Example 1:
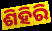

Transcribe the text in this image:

ଶିହିରି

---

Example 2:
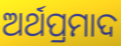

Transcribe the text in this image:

ଅର୍ଥପ୍ରମାଦ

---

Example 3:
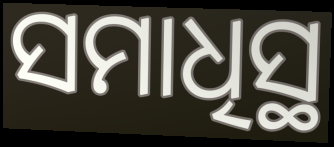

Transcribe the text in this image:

ସମାଧିସ୍ଥ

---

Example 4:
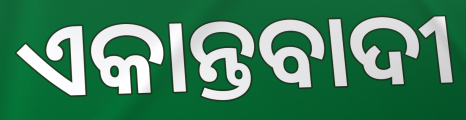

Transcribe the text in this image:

ଏକାନ୍ତବାଦୀ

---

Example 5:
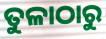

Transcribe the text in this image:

ତୁଳାଠାରୁ